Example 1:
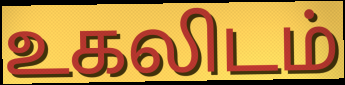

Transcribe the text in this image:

உகலிடம்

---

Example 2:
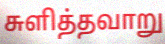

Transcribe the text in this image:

சுளித்தவாறு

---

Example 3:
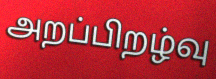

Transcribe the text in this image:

அறப்பிறழ்வு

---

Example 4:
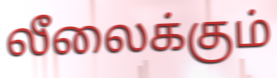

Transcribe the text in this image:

லீலைக்கும்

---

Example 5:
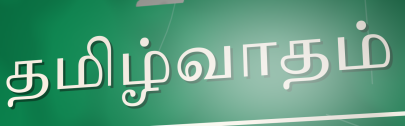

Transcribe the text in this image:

தமிழ்வாதம்